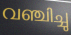
വഞ്ചിച്ചു